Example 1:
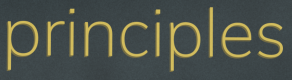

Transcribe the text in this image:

principles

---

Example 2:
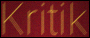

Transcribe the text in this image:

Kritik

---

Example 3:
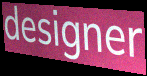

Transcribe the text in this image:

designer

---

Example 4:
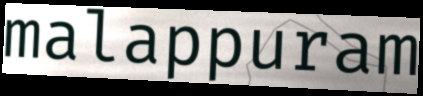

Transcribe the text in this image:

malappuram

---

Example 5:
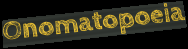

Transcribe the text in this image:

Onomatopoeia